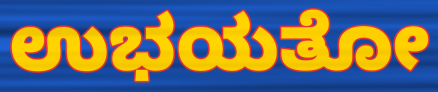
ಉಭಯತೋ